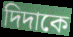
দিদাকে